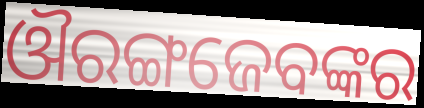
ଔରଙ୍ଗଜେବଙ୍କର